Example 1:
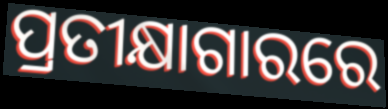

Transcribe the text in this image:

ପ୍ରତୀକ୍ଷାଗାରରେ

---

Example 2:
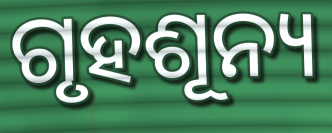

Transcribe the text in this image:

ଗୃହଶୂନ୍ୟ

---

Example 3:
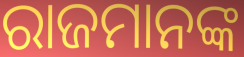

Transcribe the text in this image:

ରାଜମାନଙ୍କ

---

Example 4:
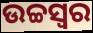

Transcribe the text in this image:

ଉଚ୍ଚସ୍ଵର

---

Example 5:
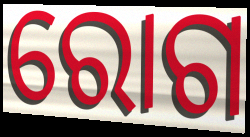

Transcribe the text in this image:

ରୋଗ